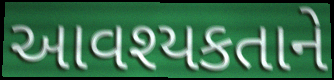
આવશ્યકતાને